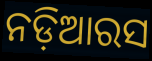
ନଡ଼ିଆରସ